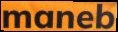
maneb